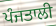
ਪੰਜਤਾਲੀ